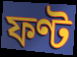
ফণ্ট